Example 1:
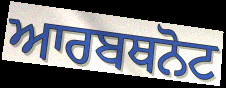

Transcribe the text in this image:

ਆਰਬਥਨੋਟ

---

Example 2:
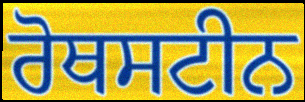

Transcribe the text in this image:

ਰੋਥਸਟੀਨ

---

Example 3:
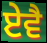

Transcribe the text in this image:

ਏਵੈ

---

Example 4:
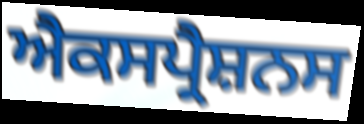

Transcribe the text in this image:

ਐਕਸਪ੍ਰੈਸ਼ਨਸ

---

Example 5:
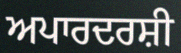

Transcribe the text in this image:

ਅਪਾਰਦਰਸ਼ੀ